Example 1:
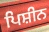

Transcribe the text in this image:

ਪਿਸ਼ੀਨ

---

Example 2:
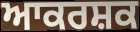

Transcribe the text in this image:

ਆਕਰਸ਼ਕ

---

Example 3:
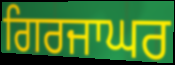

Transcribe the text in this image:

ਗਿਰਜਾਘਰ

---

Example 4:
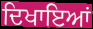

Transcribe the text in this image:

ਦਿਖਾਇਆਂ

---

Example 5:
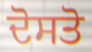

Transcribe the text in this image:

ਦੋਸਤੋ